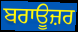
ਬਰਾਊਜ਼ਰ